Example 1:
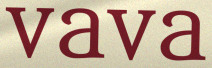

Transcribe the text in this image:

vava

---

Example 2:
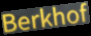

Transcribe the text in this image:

Berkhof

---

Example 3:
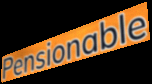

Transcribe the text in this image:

Pensionable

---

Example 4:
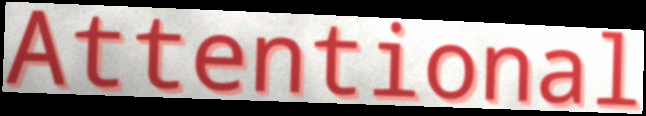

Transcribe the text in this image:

Attentional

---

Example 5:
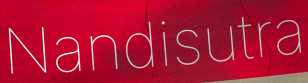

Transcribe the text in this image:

Nandisutra